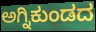
ಅಗ್ನಿಕುಂಡದ